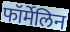
फॉर्मेलिन